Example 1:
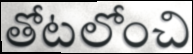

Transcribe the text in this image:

తోటలోంచి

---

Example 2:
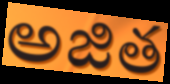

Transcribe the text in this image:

అజిత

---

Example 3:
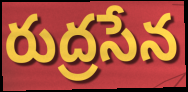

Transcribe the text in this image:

రుద్రసేన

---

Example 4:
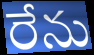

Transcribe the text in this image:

రేను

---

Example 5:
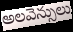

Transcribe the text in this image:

అలవెన్సులు